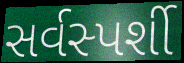
સર્વસ્પર્શી